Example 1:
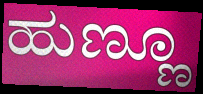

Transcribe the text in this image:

ಹುಣ್ಣೂ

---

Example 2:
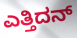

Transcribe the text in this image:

ಎತ್ತಿದನ್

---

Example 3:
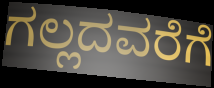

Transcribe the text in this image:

ಗಲ್ಲದವರೆಗೆ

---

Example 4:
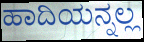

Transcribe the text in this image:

ಹಾದಿಯನ್ನಲ್ಲ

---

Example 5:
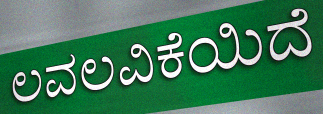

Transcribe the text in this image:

ಲವಲವಿಕೆಯಿದೆ